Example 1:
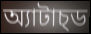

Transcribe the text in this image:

অ্যাটাচ্ড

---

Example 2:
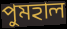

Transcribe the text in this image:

পুমহাল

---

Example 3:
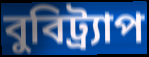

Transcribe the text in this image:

বুবিট্র্যাপ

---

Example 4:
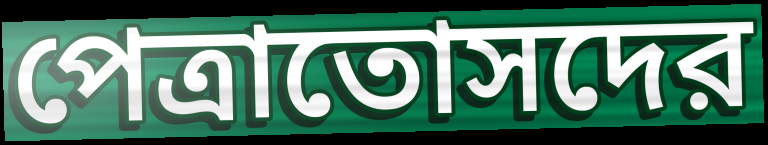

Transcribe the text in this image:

পেত্রাতোসদের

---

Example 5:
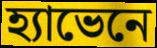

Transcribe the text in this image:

হ্যাভেনে